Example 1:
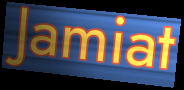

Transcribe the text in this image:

Jamiat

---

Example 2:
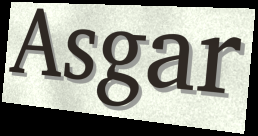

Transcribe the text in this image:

Asgar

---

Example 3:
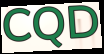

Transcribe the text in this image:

CQD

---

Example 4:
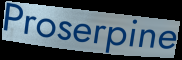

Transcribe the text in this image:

Proserpine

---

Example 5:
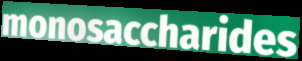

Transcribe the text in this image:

monosaccharides